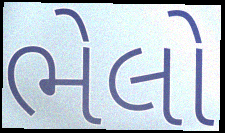
ભેલો